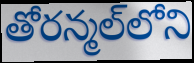
తోరన్మల్‌లోని